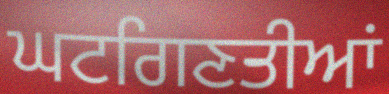
ਘਟਗਿਣਤੀਆਂ